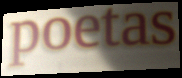
poetas